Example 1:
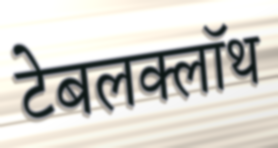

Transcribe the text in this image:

टेबलक्लॉथ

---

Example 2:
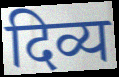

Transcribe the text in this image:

दिव्य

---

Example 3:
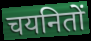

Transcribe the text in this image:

चयनितों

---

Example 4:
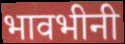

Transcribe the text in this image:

भावभीनी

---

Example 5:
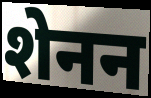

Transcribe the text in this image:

शेनन